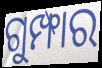
ଗୁମ୍ଫାର